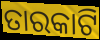
ତାରକାଟି